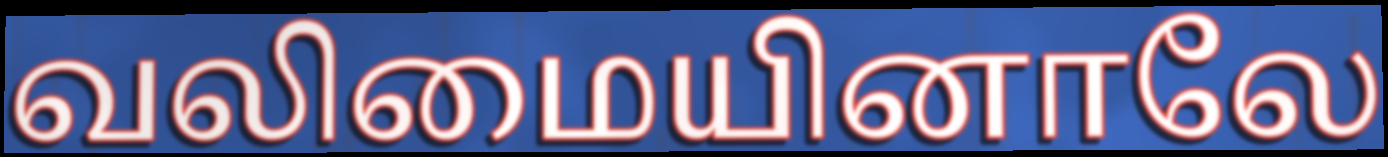
வலிமையினாலே